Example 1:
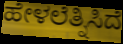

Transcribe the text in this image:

ಹೇಳಲೆತ್ನಿಸಿದೆ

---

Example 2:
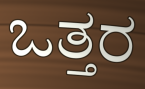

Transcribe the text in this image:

ಒತ್ತರ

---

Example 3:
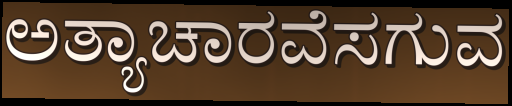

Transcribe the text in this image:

ಅತ್ಯಾಚಾರವೆಸಗುವ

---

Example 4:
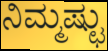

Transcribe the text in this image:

ನಿಮ್ಮಷ್ಟು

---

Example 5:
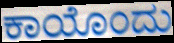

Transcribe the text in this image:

ಕಾಯೊಂದು